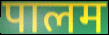
पालम